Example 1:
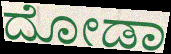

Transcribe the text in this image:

ದೋಡಾ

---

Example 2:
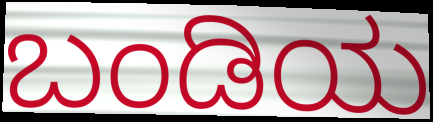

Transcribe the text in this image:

ಬಂಡಿಯ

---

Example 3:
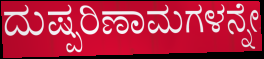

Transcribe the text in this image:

ದುಷ್ಪರಿಣಾಮಗಳನ್ನೇ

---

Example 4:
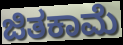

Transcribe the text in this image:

ಜಿತಕಾಮೆ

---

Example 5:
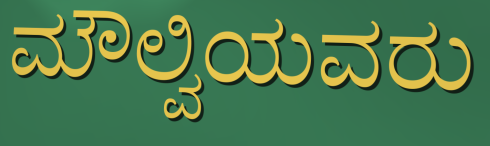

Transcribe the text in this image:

ಮೌಲ್ವಿಯವರು